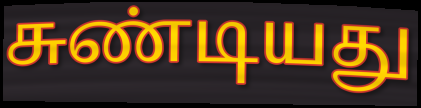
சுண்டியது